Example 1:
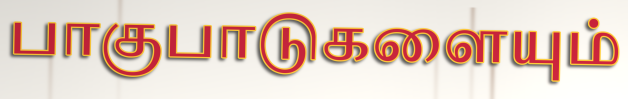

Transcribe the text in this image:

பாகுபாடுகளையும்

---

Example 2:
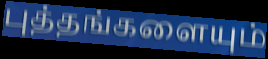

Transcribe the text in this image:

புத்தங்களையும்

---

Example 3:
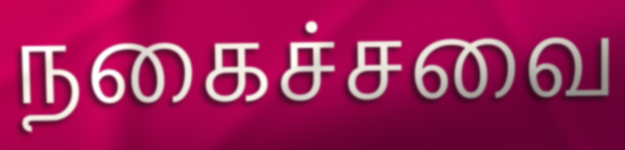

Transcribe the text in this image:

நகைச்சவை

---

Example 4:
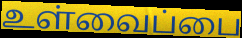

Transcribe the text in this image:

உள்வைப்பை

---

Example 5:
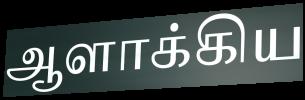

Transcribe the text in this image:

ஆளாக்கிய